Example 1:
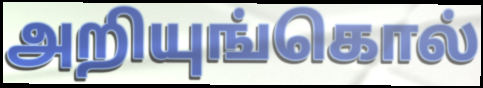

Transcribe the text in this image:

அறியுங்கொல்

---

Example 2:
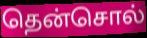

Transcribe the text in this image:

தென்சொல்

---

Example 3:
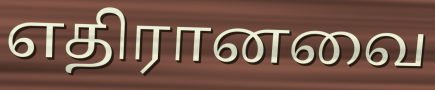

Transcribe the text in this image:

எதிரானவை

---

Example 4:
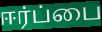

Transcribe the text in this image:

ஈர்ப்பை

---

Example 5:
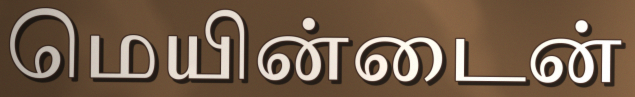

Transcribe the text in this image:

மெயின்டைன்